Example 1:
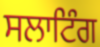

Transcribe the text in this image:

ਸਲਾਟਿੰਗ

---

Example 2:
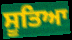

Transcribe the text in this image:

ਸੂਤਿਆ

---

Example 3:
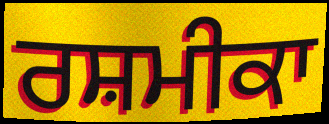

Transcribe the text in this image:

ਰਸ਼ਮੀਕਾ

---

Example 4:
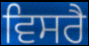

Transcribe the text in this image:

ਵਿਸਰੈ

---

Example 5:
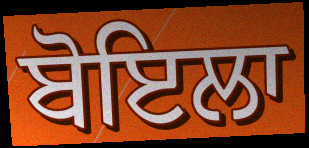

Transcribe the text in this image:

ਬੋਇਲਾ